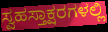
ಸ್ವಹಸ್ತಾಕ್ಷರಗಳಲ್ಲಿ